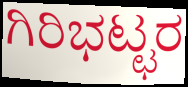
ಗಿರಿಭಟ್ಟರ